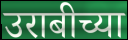
उराबीच्या